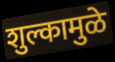
शुल्कामुळे